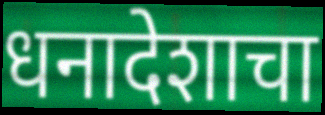
धनादेशाचा